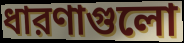
ধারণাগুলো